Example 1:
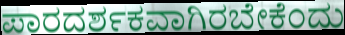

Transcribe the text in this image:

ಪಾರದರ್ಶಕವಾಗಿರಬೇಕೆಂದು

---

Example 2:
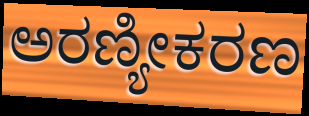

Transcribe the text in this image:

ಅರಣ್ಯೀಕರಣ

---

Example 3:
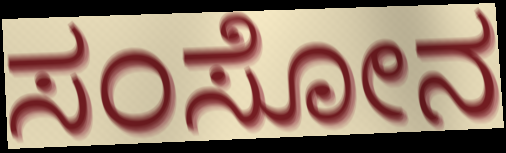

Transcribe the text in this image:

ಸಂಸೋನ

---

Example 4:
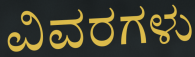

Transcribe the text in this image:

ವಿವರಗಳು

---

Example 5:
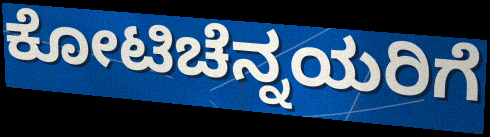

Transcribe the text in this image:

ಕೋಟಿಚೆನ್ನಯರಿಗೆ